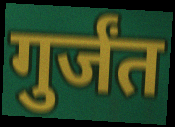
गुर्जंत